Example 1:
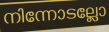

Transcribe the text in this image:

നിന്നോടല്ലോ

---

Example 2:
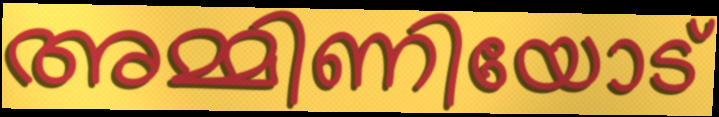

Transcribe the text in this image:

അമ്മിണിയോട്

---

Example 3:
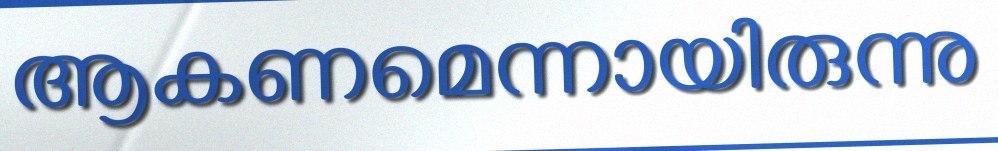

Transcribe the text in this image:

ആകണമെന്നായിരുന്നു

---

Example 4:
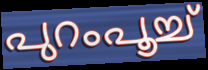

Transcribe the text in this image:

പുറംപൂച്ച്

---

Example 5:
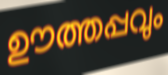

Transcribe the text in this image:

ഊത്തപ്പവും